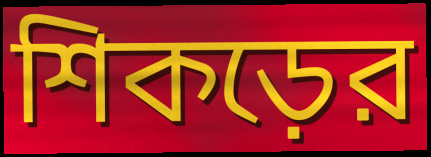
শিকড়ের